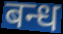
बन्ध